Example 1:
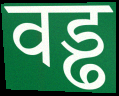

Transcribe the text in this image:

वड्ढ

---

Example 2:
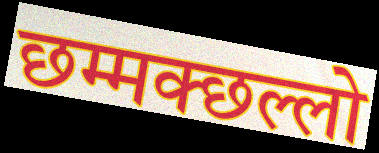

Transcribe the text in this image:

छम्मक्छल्लो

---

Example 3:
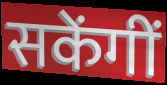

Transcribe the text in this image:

सकेंगीं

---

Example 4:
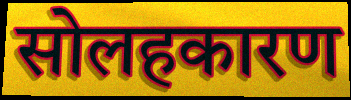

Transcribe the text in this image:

सोलहकारण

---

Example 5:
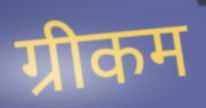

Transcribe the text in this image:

ग्रीकम